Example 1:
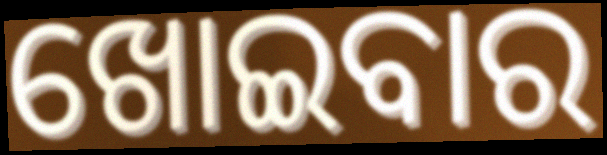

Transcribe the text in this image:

ଖୋଇବାର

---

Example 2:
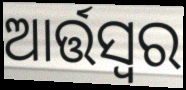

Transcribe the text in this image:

ଆର୍ତ୍ତସ୍ୱର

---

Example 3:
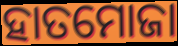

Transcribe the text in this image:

ହାତମୋଜା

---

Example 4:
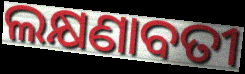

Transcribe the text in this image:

ଲକ୍ଷଣାବତୀ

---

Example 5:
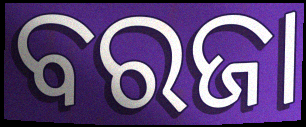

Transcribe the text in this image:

ବରଜା